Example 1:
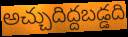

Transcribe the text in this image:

అచ్చుదిద్దబడ్డది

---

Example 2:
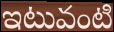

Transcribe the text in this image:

ఇటువంటి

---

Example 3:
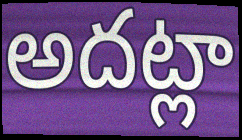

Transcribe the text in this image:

అదట్లా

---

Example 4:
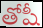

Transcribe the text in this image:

తోషీ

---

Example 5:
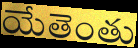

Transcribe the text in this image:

యేతెంతు